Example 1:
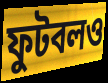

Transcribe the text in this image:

ফুটবলও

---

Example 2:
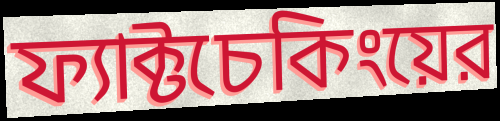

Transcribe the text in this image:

ফ্যাক্টচেকিংয়ের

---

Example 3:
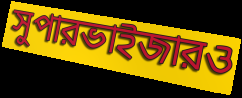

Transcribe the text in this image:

সুপারভাইজারও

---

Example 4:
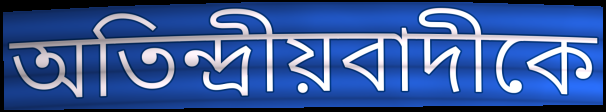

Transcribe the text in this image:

অতিন্দ্রীয়বাদীকে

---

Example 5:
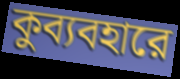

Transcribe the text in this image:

কুব্যবহারে